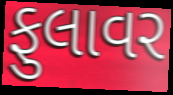
ફુલાવર